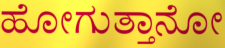
ಹೋಗುತ್ತಾನೋ